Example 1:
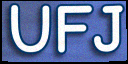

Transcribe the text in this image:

UFJ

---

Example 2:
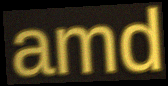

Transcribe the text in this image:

amd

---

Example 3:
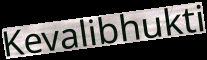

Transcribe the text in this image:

Kevalibhukti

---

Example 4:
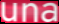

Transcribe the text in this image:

una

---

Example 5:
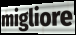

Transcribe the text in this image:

migliore